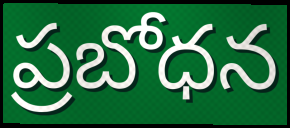
ప్రబోధన